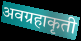
अवग्रहाकृती